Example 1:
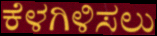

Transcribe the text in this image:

ಕೆಳಗಿಳಿಸಲು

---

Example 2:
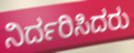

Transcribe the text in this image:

ನಿರ್ದರಿಸಿದರು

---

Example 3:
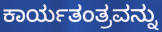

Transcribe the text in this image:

ಕಾರ್ಯತಂತ್ರವನ್ನು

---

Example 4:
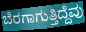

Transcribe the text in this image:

ಬೆರಗಾಗುತ್ತಿದ್ದೆವು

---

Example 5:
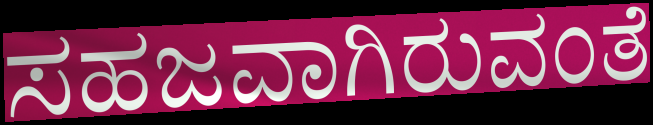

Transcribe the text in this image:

ಸಹಜವಾಗಿರುವಂತೆ